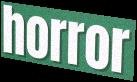
horror